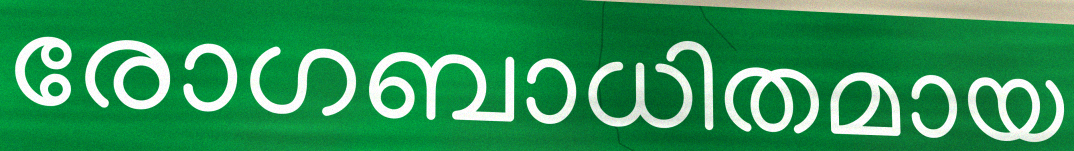
രോഗബാധിതമായ